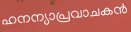
ഹനന്യാപ്രവാചകൻ